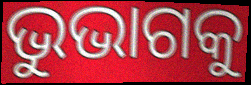
ଭୁଭାଗକୁ